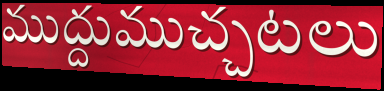
ముద్దుముచ్చటలు